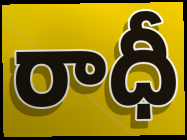
రాధీ